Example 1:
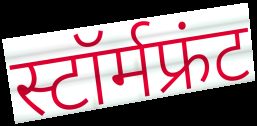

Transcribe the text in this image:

स्टॉर्मफ्रंट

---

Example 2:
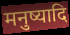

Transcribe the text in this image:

मनुष्यादि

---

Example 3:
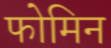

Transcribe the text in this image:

फोमिन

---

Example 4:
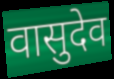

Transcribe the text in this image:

वासुदेव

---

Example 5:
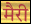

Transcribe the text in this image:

मैरी